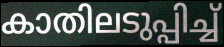
കാതിലടുപ്പിച്ച്